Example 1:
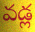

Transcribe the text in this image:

వడ్ల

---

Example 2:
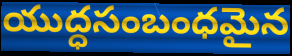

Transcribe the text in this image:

యుద్ధసంబంధమైన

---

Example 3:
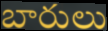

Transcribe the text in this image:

బారులు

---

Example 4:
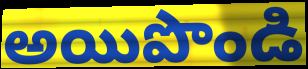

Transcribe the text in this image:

అయిపొండి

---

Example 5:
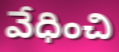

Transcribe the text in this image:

వేధించి